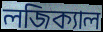
লজিক্যাল